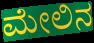
ಮೇಲಿನ